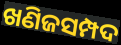
ଖଣିଜସମ୍ପଦ